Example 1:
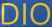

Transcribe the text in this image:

DIO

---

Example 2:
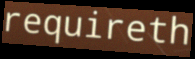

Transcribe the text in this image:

requireth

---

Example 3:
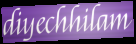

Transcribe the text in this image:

diyechhilam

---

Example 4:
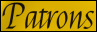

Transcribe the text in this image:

Patrons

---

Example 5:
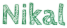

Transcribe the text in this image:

Nikal